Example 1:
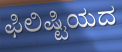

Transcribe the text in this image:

ಫಿಲಿಷ್ಟಿಯದ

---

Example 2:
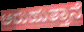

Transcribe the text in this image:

ಅರುಹುತ್ತಾನೆ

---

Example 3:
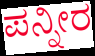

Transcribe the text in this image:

ಪನ್ನೀರ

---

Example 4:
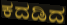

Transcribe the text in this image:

ಕದಡಿದ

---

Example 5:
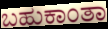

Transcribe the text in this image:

ಬಹುಕಾಂತಾ